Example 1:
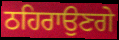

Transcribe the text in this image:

ਠਹਿਰਾਉਣਗੇ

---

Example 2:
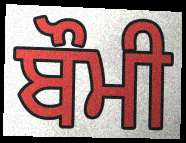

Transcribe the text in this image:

ਬੌਮੀ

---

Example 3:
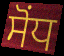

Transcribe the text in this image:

ਸੋਂਧ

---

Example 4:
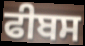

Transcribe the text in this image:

ਫੀਬਸ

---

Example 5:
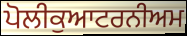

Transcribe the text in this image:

ਪੋਲੀਕੁਆਟਰਨੀਅਮ